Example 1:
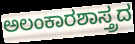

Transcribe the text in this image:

ಅಲಂಕಾರಶಾಸ್ತ್ರದ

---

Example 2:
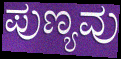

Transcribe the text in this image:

ಪುಣ್ಯವು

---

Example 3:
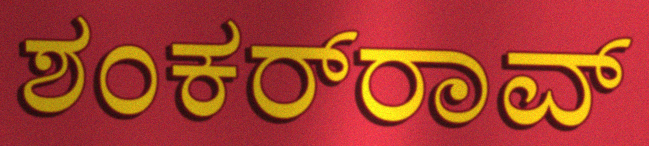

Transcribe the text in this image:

ಶಂಕರ್‌ರಾವ್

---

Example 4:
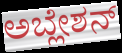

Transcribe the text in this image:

ಅಬ್ಲೇಶನ್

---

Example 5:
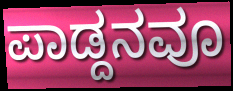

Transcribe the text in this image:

ಪಾಡ್ದನವೂ